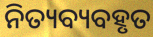
ନିତ୍ୟବ୍ୟବହୃତ